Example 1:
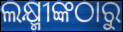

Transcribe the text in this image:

ଲକ୍ଷ୍ମୀଙ୍କଠାରୁ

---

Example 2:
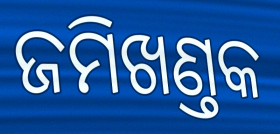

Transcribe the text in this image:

ଜମିଖଣ୍ତକ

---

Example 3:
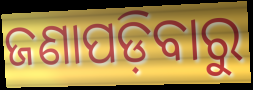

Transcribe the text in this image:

ଜଣାପଡ଼ିବାରୁ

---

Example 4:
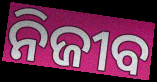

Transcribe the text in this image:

ନିଜୀବ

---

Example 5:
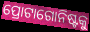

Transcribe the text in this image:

ପ୍ରୋଟାଗୋନିଷ୍ଟକୁ